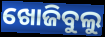
ଖୋଜିବୁଲୁ